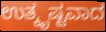
ಉತ್ಕೃಷ್ಟವಾದ